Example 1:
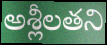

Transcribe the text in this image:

అశ్లీలతని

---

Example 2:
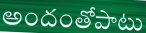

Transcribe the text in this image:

అందంతోపాటు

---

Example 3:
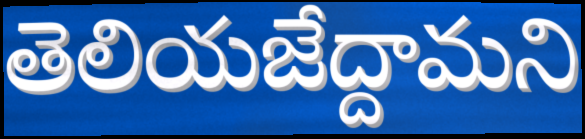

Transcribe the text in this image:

తెలియజేద్దామని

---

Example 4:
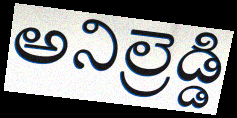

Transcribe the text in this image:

అనిల్రెడ్డి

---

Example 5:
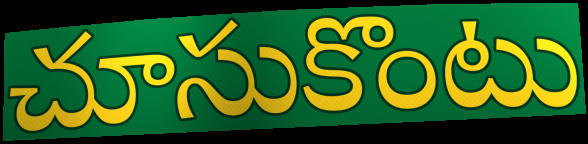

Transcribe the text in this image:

చూసుకొంటు